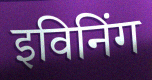
इविनिंग